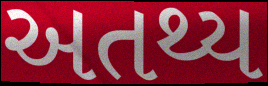
અતથ્ય